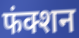
फंक्शन